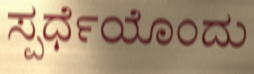
ಸ್ಪರ್ಧೆಯೊಂದು